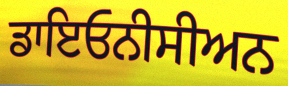
ਡਾਇਓਨੀਸੀਅਨ